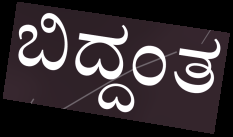
ಬಿದ್ದಂತ